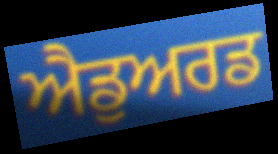
ਐਡੁਅਰਡ